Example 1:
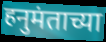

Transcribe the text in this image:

हनुमंताच्या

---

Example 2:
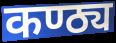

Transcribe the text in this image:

कण्ठ्य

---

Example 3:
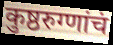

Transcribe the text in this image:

कुष्ठरुग्णांचं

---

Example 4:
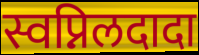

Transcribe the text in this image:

स्वप्निलदादा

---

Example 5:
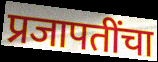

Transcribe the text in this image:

प्रजापतींचा